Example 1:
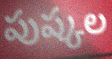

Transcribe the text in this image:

పుష్కల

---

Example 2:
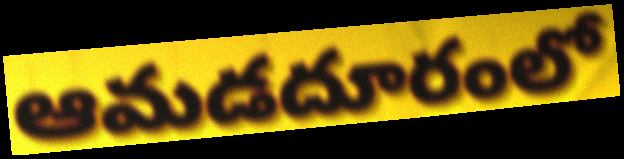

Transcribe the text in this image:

ఆమడదూరంలో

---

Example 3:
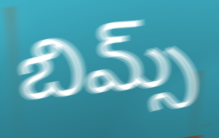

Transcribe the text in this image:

బిమ్స్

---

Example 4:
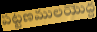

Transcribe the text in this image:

పట్టణములయొద్ద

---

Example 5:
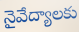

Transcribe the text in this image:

నైవేద్యాలకు